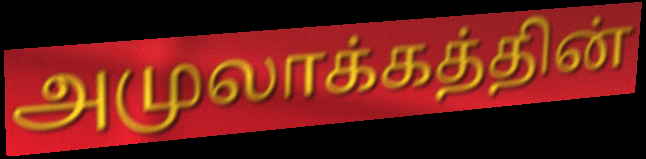
அமுலாக்கத்தின்